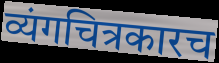
व्यंगचित्रकारच